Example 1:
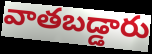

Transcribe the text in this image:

వాతబడ్డారు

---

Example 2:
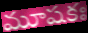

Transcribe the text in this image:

మూషకః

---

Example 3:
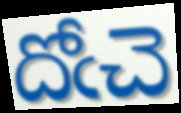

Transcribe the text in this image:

దోఁచె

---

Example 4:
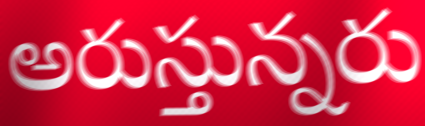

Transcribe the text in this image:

అరుస్తున్నరు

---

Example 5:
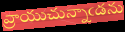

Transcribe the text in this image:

వ్రాయుచున్నాఁడను